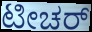
ಟೀಚರ್